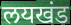
लयखंड